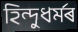
হিন্দুধৰ্মৰ